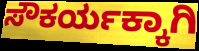
ಸೌಕರ್ಯಕ್ಕಾಗಿ